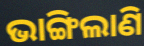
ଭାଙ୍ଗିଲାଣି